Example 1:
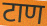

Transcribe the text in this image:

टाण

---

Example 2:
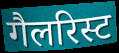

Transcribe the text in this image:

गैलरिस्ट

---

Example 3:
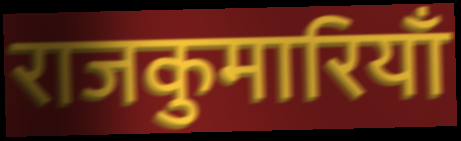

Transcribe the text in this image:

राजकुमारियाँ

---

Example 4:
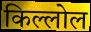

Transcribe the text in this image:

किल्लोल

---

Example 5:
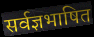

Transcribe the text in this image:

सर्वज्ञभाषित